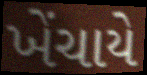
ખેંચાયે